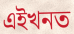
এইখনত